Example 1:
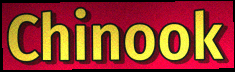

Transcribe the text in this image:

Chinook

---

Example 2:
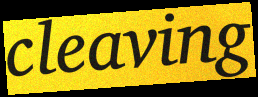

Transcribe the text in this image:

cleaving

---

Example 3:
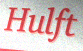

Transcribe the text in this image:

Hulft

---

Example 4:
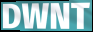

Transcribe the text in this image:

DWNT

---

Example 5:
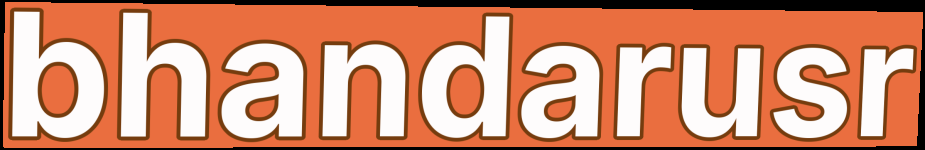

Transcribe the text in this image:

bhandarusr